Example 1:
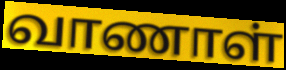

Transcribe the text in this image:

வாணாள்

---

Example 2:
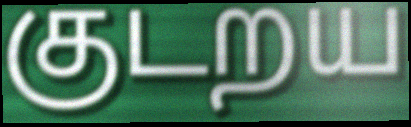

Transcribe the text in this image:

குடறய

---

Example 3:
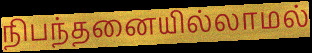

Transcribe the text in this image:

நிபந்தனையில்லாமல்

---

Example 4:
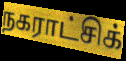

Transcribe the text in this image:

நகராட்சிக்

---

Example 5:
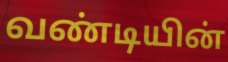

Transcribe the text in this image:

வண்டியின்